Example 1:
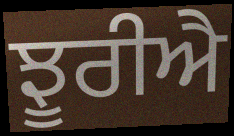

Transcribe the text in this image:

ਝੂਰੀਐ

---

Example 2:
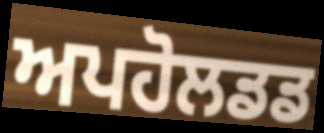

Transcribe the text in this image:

ਅਪਹੋਲਡਡ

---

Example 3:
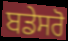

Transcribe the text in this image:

ਬਡੇਸਰੋ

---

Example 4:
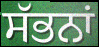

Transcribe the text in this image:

ਸੱਭਨਾਂ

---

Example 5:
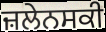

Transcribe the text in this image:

ਜ਼ਲੇਨਸਕੀ